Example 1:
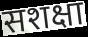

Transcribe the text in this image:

सशक्षा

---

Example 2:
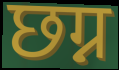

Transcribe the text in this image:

छग्न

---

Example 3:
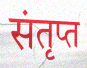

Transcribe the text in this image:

संतृप्त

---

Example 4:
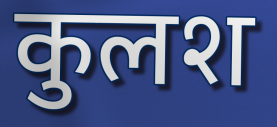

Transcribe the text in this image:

कुलश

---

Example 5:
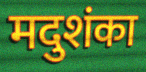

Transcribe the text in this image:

मदुशंका